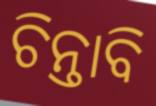
ଚିନ୍ତାବି